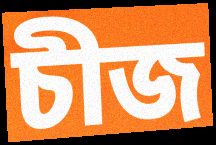
চীজ